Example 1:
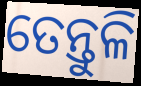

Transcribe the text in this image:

ତେନ୍ତୁଳି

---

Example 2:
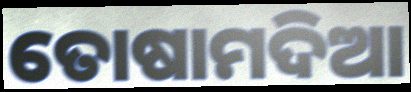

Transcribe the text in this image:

ତୋଷାମଦିଆ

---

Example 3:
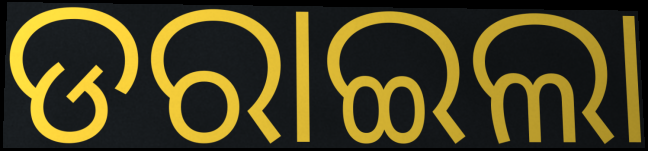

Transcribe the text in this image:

ଡରାଇଲା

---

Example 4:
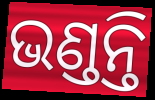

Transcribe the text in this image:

ଭଣ୍ଡନ୍ତି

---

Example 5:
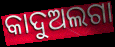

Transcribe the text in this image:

କାଦୁଅଲଗା